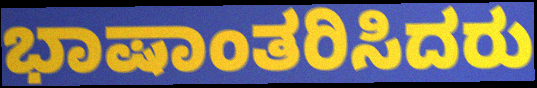
ಭಾಷಾಂತರಿಸಿದರು